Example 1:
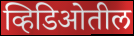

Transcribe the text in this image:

व्हिडिओतील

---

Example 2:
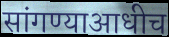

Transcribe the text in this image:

सांगण्याआधीच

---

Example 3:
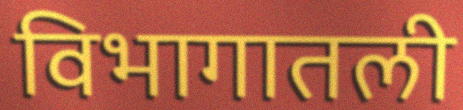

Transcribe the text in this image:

विभागातली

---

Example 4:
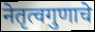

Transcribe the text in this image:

नेतृत्वगुणाचे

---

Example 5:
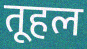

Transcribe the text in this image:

तूहल